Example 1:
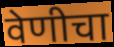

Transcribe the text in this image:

वेणीचा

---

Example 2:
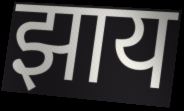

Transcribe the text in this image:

झाय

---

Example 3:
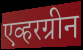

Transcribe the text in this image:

एव्हरग्रीन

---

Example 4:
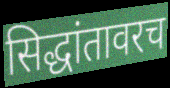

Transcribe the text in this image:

सिद्धांतावरच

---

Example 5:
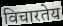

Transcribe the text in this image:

विचारतेय